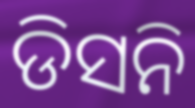
ଡିସନି